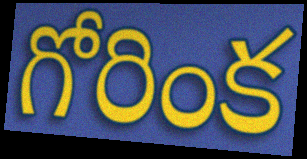
గోరింక